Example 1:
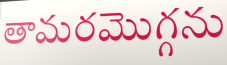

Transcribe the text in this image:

తామరమొగ్గను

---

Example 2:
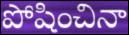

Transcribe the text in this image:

పోషించినా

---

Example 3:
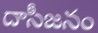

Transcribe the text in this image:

దాసీజనం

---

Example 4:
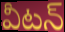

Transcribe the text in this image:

వీటన్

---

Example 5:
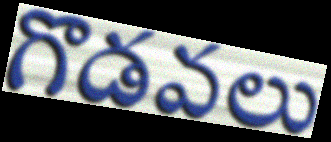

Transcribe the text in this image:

గొడవలు